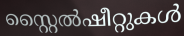
സ്റ്റൈൽഷീറ്റുകൾ